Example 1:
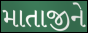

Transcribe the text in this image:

માતાજીને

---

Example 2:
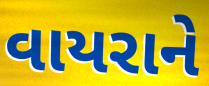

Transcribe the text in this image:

વાયરાને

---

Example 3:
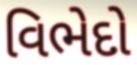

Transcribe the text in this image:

વિભેદો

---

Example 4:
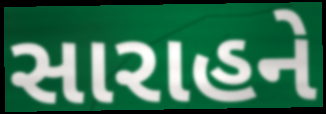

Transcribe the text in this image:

સારાહને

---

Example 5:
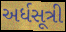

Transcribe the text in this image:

અર્ધસૂત્રી